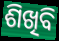
ଶିଖିବି